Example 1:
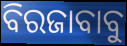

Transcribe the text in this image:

ବିରଜାବାବୁ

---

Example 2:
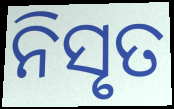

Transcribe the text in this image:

ନିସୃତ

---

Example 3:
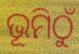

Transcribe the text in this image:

ଭୂମିଠୁଁ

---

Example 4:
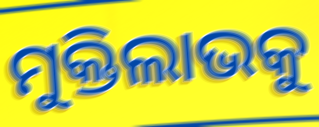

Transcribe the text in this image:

ମୁକ୍ତିଲାଭକୁ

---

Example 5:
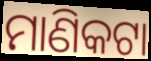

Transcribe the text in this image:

ମାଣିକଟା